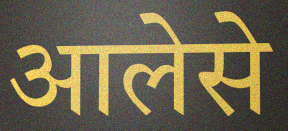
आलेसे